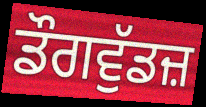
ਡੌਗਵੁੱਡਜ਼